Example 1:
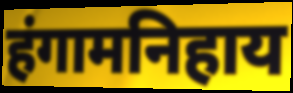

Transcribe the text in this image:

हंगामनिहाय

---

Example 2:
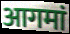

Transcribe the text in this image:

आगमां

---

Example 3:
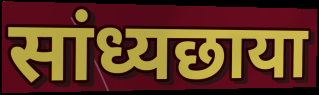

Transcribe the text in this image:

सांध्यछाया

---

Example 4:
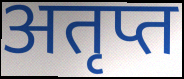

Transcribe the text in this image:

अतृप्त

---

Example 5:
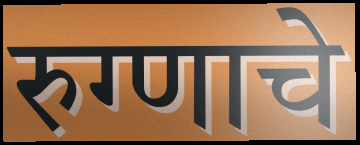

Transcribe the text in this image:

रुग्णाचे